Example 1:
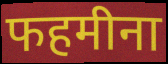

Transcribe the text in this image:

फहमीना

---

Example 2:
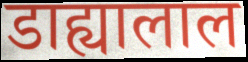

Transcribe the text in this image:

डाह्यालाल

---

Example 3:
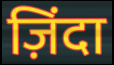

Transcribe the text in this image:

ज़िंदा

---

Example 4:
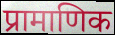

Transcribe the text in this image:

प्रामाणिक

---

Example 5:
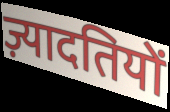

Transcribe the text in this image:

ज़्यादतियों